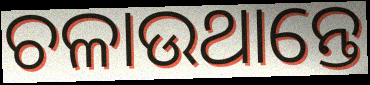
ଚଳାଉଥାନ୍ତେ